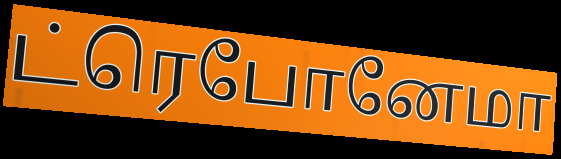
ட்ரெபோனேமா